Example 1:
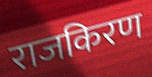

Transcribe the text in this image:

राजकिरण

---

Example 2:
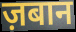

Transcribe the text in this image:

ज़बान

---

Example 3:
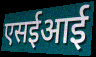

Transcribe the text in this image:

एसईआई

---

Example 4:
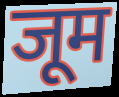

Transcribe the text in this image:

जूम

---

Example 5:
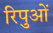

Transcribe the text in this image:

रिपुओं